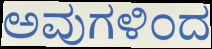
ಅವುಗಳಿಂದ